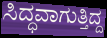
ಸಿದ್ಧವಾಗುತ್ತಿದ್ದ